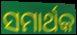
ସମାର୍ଥକ